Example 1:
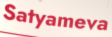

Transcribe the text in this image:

Satyameva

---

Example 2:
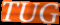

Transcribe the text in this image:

TUG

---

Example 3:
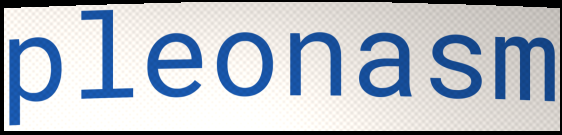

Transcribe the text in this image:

pleonasm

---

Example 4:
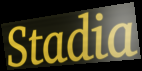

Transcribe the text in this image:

Stadia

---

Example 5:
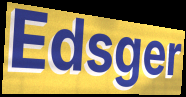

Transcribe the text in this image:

Edsger